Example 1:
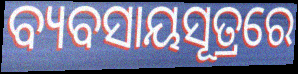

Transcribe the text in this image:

ବ୍ୟବସାୟସୂତ୍ରରେ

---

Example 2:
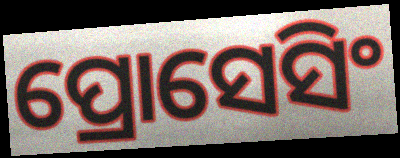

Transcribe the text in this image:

ପ୍ରୋସେସିଂ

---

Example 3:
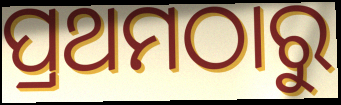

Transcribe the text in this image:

ପ୍ରଥମଠାରୁ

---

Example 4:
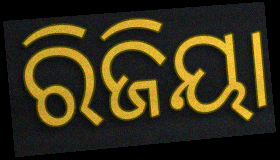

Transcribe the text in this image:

ରିଜିୟା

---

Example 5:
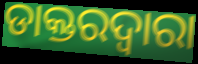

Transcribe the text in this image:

ଡାକ୍ତରଦ୍ୱାରା